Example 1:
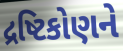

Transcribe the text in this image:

દ્રષ્ટિકોણને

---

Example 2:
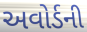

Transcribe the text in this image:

અવોર્ડની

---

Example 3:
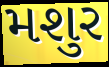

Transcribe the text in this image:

મશુર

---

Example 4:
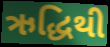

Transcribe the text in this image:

ઋદ્ધિથી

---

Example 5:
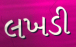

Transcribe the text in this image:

લખડી